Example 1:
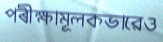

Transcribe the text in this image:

পৰীক্ষামূলকভাৱেও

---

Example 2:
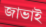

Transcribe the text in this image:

জাভাই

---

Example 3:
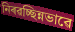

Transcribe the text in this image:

নিৰৱচ্ছিন্নভাৱে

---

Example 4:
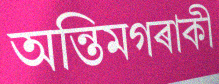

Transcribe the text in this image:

অন্তিমগৰাকী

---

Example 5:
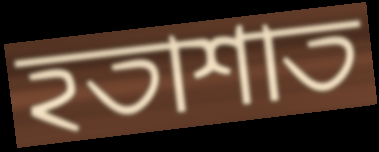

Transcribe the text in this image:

হতাশাত